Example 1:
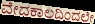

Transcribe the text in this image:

ವೇದಕಾಲದಿಂದಲೇ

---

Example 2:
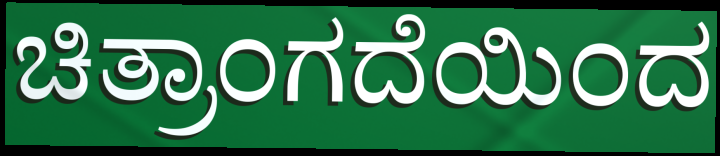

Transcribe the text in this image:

ಚಿತ್ರಾಂಗದೆಯಿಂದ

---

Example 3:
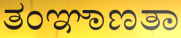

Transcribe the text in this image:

ತಂಞಾಣತಾ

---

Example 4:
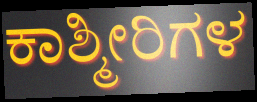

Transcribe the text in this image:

ಕಾಶ್ಮೀರಿಗಳ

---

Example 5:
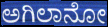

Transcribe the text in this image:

ಅಗಿಲಾನೋ